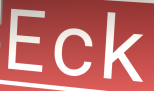
Eck